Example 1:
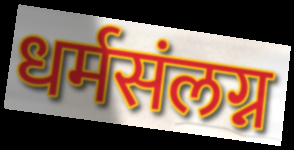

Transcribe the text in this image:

धर्मसंलग्न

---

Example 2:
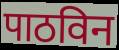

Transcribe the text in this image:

पाठविन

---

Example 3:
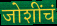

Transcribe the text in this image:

जोशींचं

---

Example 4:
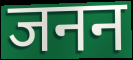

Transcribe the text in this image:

जनन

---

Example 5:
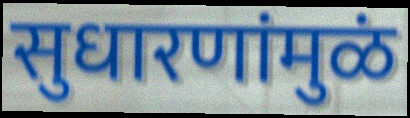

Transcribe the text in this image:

सुधारणांमुळं